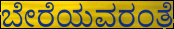
ಬೇರೆಯವರಂತೆ